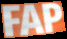
FAP